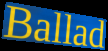
Ballad